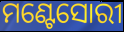
ମଣ୍ଟେସୋରୀ